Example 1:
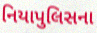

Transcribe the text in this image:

નિયાપુલિસના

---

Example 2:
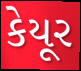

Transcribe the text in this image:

કેયૂર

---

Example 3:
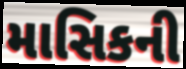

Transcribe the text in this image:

માસિકની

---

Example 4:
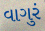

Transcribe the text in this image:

વાગુરં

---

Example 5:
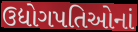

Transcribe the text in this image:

ઉદ્યોગપતિઓનાં